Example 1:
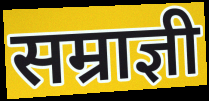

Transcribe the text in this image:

सम्राज्ञी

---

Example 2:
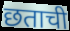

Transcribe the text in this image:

छताची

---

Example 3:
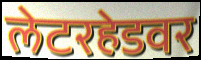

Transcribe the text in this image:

लेटरहेडवर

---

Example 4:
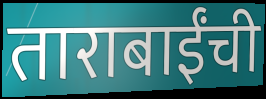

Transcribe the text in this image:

ताराबाईंची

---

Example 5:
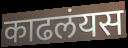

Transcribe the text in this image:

काढलंयस